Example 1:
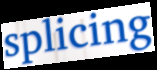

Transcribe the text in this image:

splicing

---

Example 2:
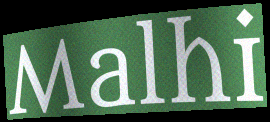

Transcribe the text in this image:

Malhi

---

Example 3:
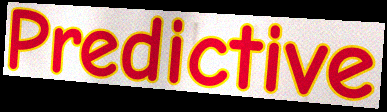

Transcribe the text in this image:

Predictive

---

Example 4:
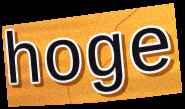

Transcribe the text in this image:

hoge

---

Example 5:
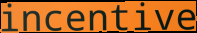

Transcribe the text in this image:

incentive